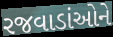
રજવાડાંઓને